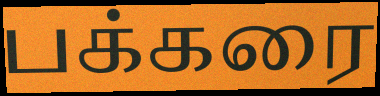
பக்கரை